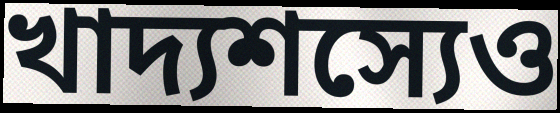
খাদ্যশস্যেও